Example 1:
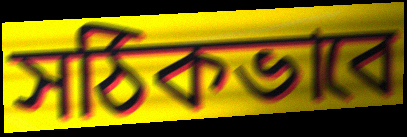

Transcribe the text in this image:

সঠিকভাবে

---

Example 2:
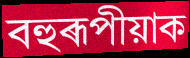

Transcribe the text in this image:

বহুৰূপীয়াক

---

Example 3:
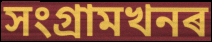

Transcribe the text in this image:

সংগ্ৰামখনৰ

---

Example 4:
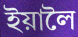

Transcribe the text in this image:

ইয়ালৈ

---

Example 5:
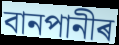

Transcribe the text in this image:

বানপানীৰ